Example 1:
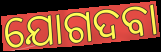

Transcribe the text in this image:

ଯୋଗଦବା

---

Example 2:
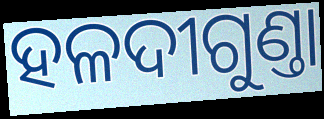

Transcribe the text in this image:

ହଳଦୀଗୁଣ୍ତା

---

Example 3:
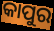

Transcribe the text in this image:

କାପୁର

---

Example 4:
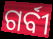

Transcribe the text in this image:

ଗର୍ବୀ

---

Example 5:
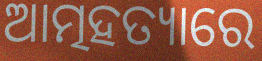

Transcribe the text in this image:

ଆତ୍ମହତ୍ୟାରେ